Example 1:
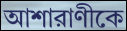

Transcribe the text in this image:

আশারাণীকে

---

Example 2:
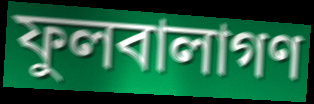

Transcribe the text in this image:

ফুলবালাগণ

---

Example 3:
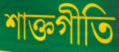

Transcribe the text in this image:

শাক্তগীতি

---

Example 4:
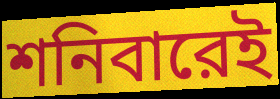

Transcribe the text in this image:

শনিবারেই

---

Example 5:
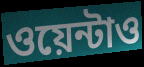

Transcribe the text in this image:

ওয়েন্টাও